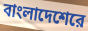
বাংলাদেশেরে